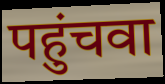
पहुंचवा